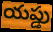
యప్డు